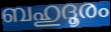
ബഹുദൂരം